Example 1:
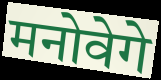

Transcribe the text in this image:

मनोवेगे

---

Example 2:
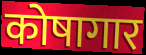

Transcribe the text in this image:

कोषागार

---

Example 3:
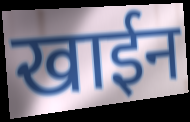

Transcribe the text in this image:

खाईन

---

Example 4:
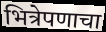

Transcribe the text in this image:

भित्रेपणाचा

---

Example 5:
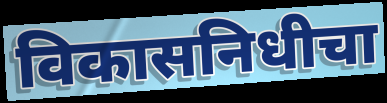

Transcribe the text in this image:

विकासनिधीचा